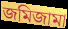
জমিজামা